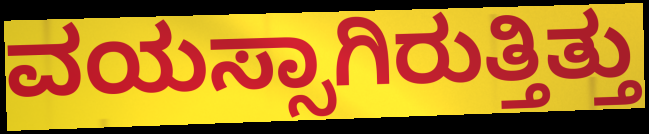
ವಯಸ್ಸಾಗಿರುತ್ತಿತ್ತು